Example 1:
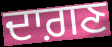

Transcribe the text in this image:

ਦਾਗ਼ਣ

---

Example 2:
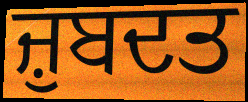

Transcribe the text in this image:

ਜ਼ੁਬਦਤ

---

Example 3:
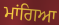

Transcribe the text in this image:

ਮਾਂਗਿਆ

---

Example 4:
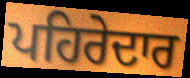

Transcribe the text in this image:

ਪਹਿਰੇਦਾਰ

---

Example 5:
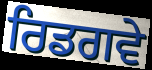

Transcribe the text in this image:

ਰਿਡਗਵੇ